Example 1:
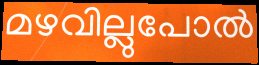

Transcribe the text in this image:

മഴവില്ലുപോൽ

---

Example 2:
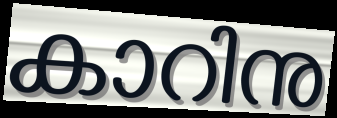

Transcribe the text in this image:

കാറിനു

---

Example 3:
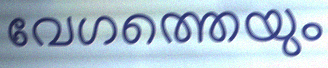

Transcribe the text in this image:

വേഗത്തെയും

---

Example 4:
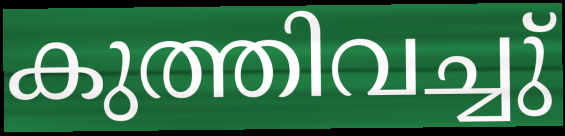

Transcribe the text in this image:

കുത്തിവച്ചു്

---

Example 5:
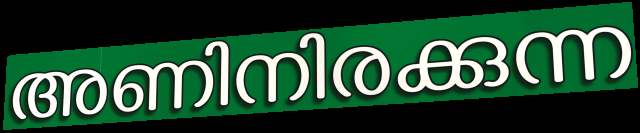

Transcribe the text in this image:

അണിനിരക്കുന്ന